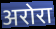
अरोरा